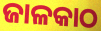
ଜାଳକାଠ